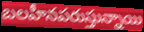
బలహీనపరుస్తున్నాయి